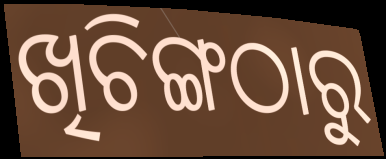
ଖିଚିଙ୍ଗଠାରୁ